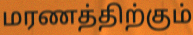
மரணத்திற்கும்